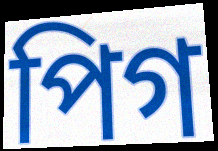
পিগ